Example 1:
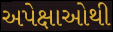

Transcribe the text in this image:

અપેક્ષાઓથી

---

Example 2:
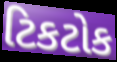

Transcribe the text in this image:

ટિકટોક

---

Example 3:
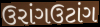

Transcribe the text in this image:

ઉરાંગઉટાંગ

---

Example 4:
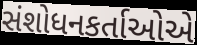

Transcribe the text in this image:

સંશોધનકર્તાઓએ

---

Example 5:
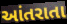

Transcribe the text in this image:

આંતરાતા